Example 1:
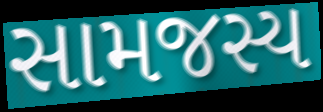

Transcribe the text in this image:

સામજસ્ય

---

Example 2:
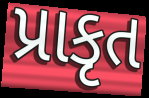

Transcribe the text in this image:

પ્રાકૃત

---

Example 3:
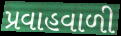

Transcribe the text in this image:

પ્રવાહવાળી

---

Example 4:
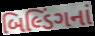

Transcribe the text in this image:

બિલ્ડિંગનાં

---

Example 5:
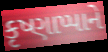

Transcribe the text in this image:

કૃષ્ણાપ્પાને